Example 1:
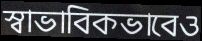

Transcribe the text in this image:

স্বাভাবিকভাবেও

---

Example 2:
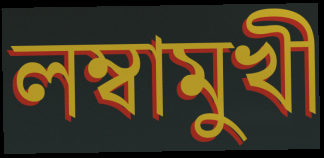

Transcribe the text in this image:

লম্বামুখী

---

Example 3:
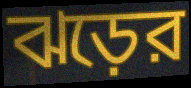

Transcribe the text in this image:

ঝড়ের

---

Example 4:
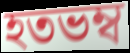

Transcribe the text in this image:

হতভম্ব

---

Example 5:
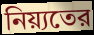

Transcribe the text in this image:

নিয়্যতের